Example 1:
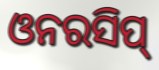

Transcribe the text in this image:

ଓନରସିପ୍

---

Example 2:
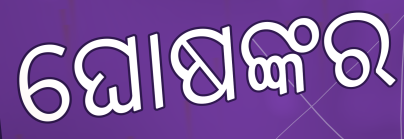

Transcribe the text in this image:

ଘୋଷଙ୍କର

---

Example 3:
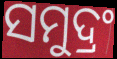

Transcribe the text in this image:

ସମୁଦ୍ରଂ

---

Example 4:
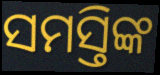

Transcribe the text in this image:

ସମସ୍ତିଙ୍କ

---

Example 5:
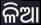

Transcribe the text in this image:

ଳିଆ